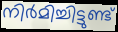
നിർമിച്ചിട്ടുണ്ട്